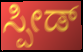
ಸ್ಪೀಡ್